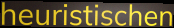
heuristischen